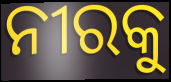
ନୀରକୁ